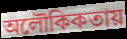
অলৌকিকতায়